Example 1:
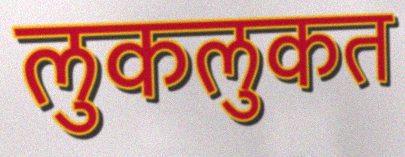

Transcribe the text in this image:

लुकलुकत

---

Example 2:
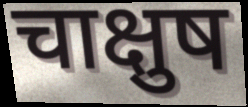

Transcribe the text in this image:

चाक्षुष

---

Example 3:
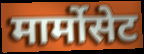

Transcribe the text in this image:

मार्मोसेट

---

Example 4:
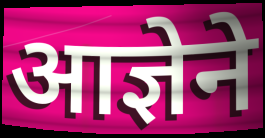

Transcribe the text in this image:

आज्ञेने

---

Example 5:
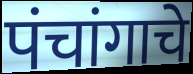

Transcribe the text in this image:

पंचांगाचे